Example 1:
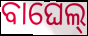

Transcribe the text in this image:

ବାଘେଲ୍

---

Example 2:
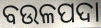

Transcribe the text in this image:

ବଉଳପଦା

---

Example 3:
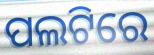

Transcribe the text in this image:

ପଲଟିରେ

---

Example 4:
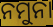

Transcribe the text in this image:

ନମୁନା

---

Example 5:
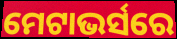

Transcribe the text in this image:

ମେଟାଭର୍ସରେ